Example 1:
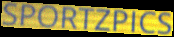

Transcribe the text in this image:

SPORTZPICS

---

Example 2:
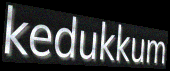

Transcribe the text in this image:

kedukkum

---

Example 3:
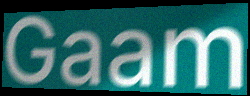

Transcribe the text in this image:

Gaam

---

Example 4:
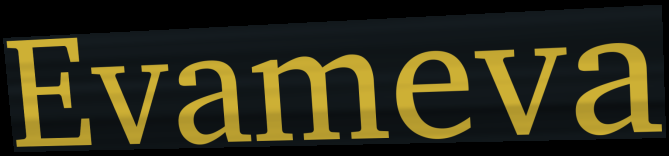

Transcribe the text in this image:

Evameva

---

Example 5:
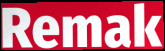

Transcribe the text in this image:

Remak